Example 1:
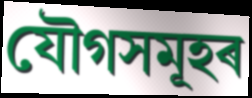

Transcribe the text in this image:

যৌগসমূহৰ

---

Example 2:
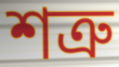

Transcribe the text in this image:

শত্ৰু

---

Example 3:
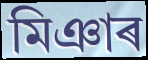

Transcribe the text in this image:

মিঞাৰ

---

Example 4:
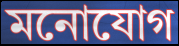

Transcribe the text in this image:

মনোযোগ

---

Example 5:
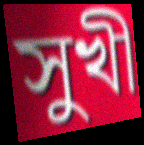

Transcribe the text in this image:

সুখী